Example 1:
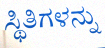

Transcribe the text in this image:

ಸ್ಥಿತಿಗಳನ್ನು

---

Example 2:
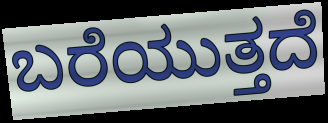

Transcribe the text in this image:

ಬರೆಯುತ್ತದೆ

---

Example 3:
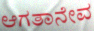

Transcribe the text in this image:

ಆಗತಾನೇವ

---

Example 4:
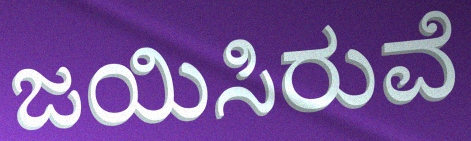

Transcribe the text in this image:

ಜಯಿಸಿರುವೆ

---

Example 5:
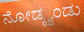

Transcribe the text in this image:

ನೋಡ್ಕ್ಯಂಡು